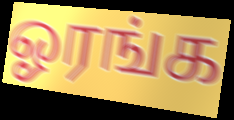
ஓரங்க